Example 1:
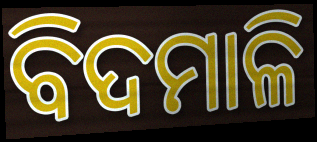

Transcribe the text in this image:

ବିଦମାଳି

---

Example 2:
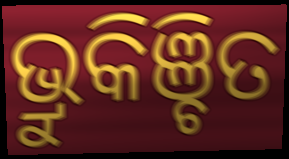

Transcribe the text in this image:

ଭ୍ରୁକିଞ୍ଚିତ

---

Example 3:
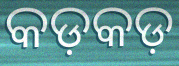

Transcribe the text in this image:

କଡ଼କଡ଼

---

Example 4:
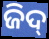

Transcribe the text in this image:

ଜିଦ୍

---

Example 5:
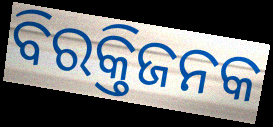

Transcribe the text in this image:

ବିରକ୍ତିଜନକ